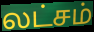
லட்சம்